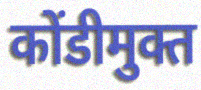
कोंडीमुक्त